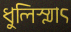
ধুলিস্মাৎ